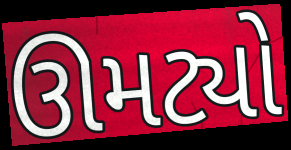
ઊમટ્યો